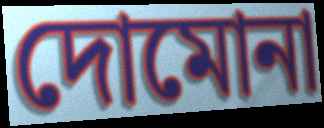
দোমোনা